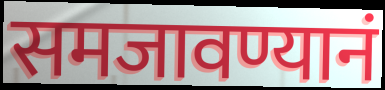
समजावण्यानं